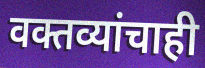
वक्तव्यांचाही